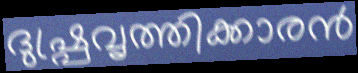
ദുഷ്പ്രവൃത്തിക്കാരൻ